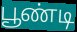
பூண்டி